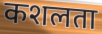
कशलता